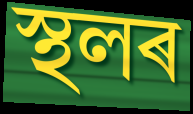
স্থলৰ